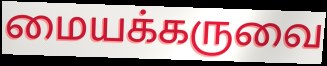
மையக்கருவை